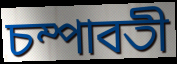
চম্পাবতী